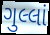
ગુલ્લાં